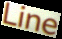
Line